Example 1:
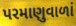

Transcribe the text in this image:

પરમાણુવાળાં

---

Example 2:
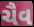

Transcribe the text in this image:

ચૈવ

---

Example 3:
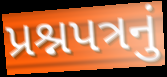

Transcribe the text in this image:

પ્રશ્નપત્રનું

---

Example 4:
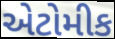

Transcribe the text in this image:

એટોમીક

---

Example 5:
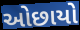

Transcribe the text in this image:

ઓછાયો